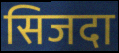
सिजदा